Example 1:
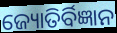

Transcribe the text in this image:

ଜ୍ୟୋତିର୍ବିଜ୍ଞାନ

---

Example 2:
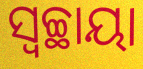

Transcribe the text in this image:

ସ୍ୱଚ୍ଛାୟା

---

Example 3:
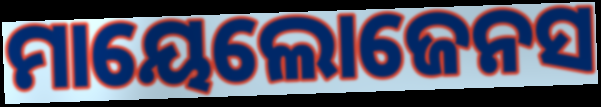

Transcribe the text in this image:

ମାୟେଲୋଜେନସ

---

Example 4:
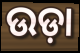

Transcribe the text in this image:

ଉଡ଼ା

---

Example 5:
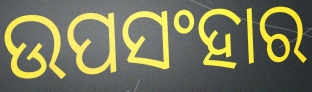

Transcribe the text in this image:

ଉପସଂହାର